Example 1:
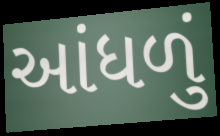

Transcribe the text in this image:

આંધળું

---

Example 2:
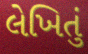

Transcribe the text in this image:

લેખિતું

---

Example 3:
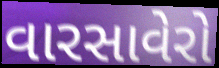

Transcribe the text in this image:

વારસાવેરો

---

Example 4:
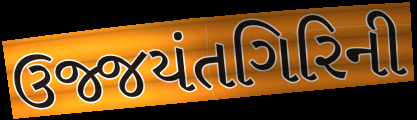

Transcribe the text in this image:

ઉજ્જયંતગિરિની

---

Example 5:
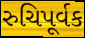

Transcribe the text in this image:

રુચિપૂર્વક